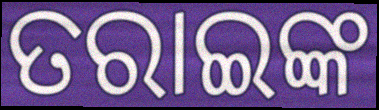
ତରାଇଙ୍କ